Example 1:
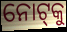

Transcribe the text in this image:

ନୋଟ୍‌କୁ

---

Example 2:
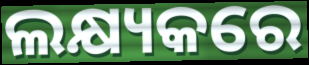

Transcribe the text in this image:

ଲକ୍ଷ୍ୟକରେ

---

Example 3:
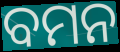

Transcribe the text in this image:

ବମନ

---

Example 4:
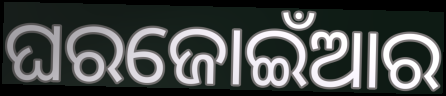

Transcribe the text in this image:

ଘରଜୋଇଁଆର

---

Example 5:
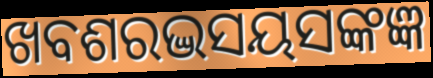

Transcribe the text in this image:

ଖବଶରଦ୍ଭସୟସଙ୍କଜ୍ଞ